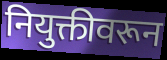
नियुक्तीवरून